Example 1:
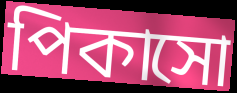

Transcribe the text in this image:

পিকাসো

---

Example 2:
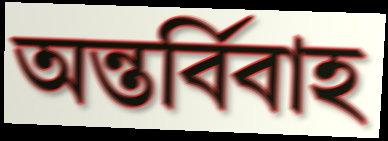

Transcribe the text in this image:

অন্তর্বিবাহ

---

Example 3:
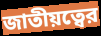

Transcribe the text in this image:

জাতীয়ত্বের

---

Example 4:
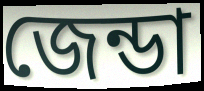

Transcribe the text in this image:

জেন্ডা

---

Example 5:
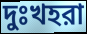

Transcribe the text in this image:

দুঃখহরা